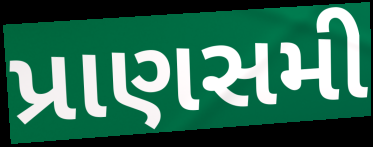
પ્રાણસમી